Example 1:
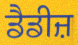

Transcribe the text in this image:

ਡੈਡੀਜ਼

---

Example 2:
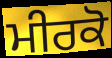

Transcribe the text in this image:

ਮੀਰਕੋ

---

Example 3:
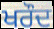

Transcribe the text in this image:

ਖਰੌਦ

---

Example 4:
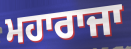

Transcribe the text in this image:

ਮਹਾਰਾਜਾ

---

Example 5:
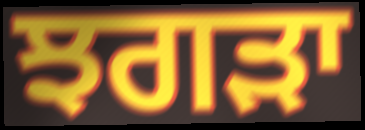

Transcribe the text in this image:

ਝਗੜਾ